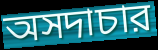
অসদাচার